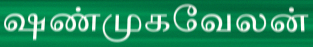
ஷண்முகவேலன்